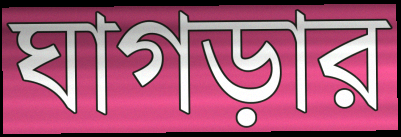
ঘাগড়ার